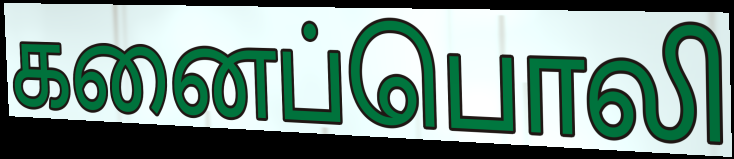
கனைப்பொலி